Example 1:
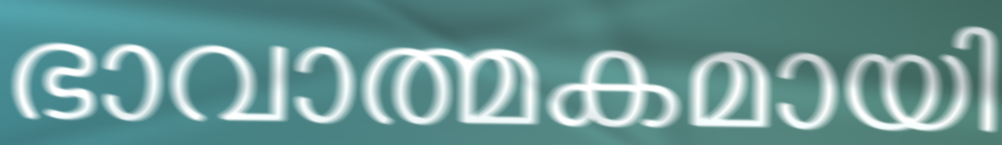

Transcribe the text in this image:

ഭാവാത്മകമായി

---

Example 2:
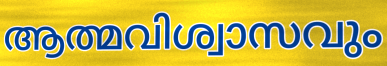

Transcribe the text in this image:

ആത്മവിശ്വാസവും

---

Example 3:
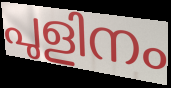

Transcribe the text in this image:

പുളിനം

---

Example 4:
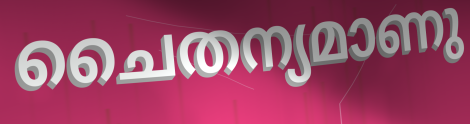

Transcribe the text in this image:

ചൈതന്യമാണു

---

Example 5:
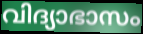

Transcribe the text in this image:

വിദ്യാഭാസം